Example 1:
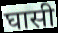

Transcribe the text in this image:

घासी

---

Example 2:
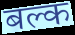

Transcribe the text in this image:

बल्क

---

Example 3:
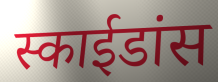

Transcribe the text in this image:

स्काईडांस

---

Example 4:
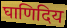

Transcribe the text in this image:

घाणिदिय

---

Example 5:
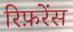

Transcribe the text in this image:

रिफ़रेंस